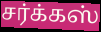
சர்க்கஸ்